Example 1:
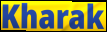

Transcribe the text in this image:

Kharak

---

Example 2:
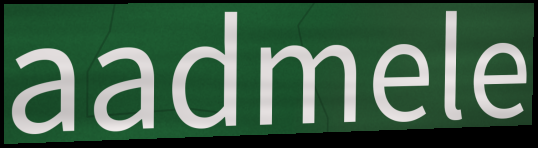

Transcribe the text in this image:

aadmele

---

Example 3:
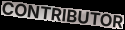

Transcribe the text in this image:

CONTRIBUTOR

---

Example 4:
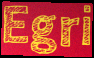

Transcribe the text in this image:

Egri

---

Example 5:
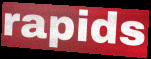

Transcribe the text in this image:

rapids